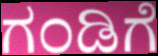
ಗಂಡಿಗೆ